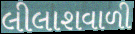
લીલાશવાળી